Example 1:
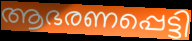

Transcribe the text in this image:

ആഭരണപ്പെട്ടി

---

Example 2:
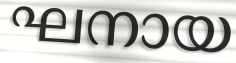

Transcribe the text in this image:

ഘനായ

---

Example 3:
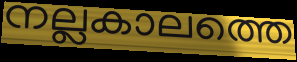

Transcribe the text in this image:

നല്ലകാലത്തെ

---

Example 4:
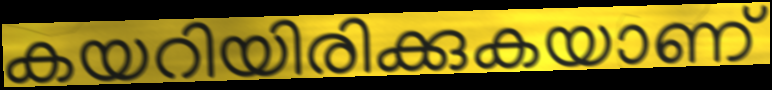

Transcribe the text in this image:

കയറിയിരിക്കുകയാണ്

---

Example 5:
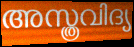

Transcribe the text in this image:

അസ്ത്രവിദ്യ